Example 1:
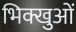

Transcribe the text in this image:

भिक्खुओं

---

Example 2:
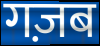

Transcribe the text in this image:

गज़ब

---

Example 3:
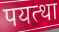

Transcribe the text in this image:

पयत्था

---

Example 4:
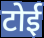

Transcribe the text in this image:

टोई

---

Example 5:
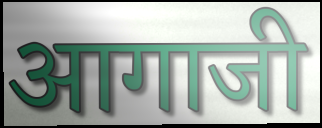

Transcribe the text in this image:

आगाजी